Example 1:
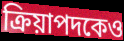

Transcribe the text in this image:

ক্রিয়াপদকেও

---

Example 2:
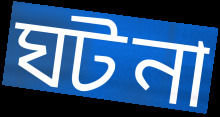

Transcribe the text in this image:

ঘটনা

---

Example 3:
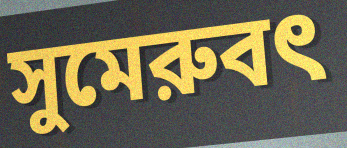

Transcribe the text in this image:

সুমেরুবৎ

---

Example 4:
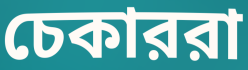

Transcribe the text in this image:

চেকাররা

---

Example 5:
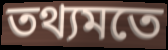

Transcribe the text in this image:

তথ্যমতে